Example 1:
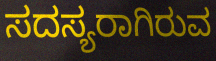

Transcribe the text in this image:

ಸದಸ್ಯರಾಗಿರುವ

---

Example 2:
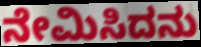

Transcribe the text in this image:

ನೇಮಿಸಿದನು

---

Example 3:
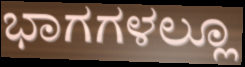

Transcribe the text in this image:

ಭಾಗಗಳಲ್ಲೂ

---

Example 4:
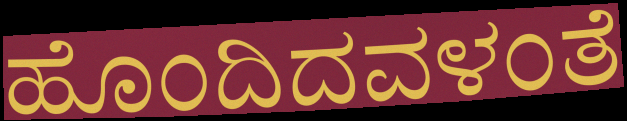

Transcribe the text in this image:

ಹೊಂದಿದವಳಂತೆ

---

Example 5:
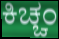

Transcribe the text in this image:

ಕಿಚ್ಚಂ